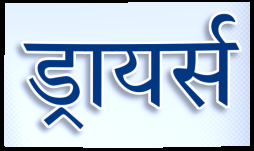
ड्रायर्स